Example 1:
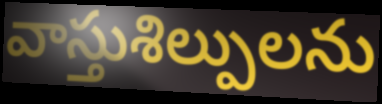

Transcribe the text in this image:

వాస్తుశిల్పులను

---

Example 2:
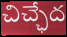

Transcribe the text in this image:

చిచ్ఛేద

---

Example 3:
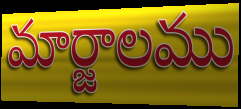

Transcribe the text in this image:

మార్జాలము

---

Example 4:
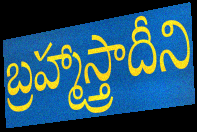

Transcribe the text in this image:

బ్రహ్మాస్త్రాదీని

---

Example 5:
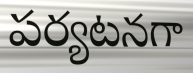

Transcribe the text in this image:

పర్యటనగా